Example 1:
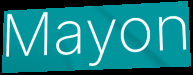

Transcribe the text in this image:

Mayon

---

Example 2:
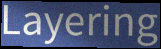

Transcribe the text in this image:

Layering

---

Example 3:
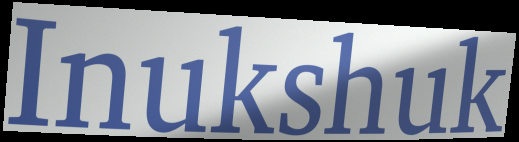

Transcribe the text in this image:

Inukshuk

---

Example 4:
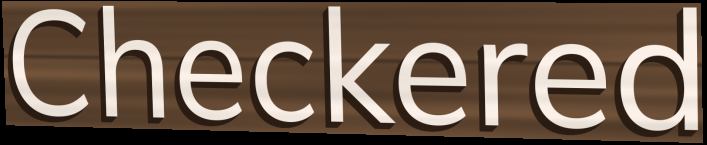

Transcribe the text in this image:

Checkered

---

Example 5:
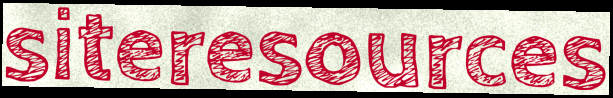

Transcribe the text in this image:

siteresources